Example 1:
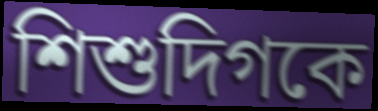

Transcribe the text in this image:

শিশুদিগকে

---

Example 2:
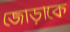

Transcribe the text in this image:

জোড়াকে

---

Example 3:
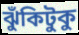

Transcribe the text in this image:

ঝুঁকিটুকু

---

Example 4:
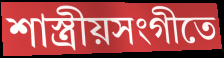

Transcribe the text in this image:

শাস্ত্রীয়সংগীতে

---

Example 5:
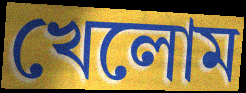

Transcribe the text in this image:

খেলোম